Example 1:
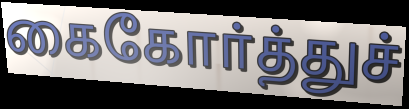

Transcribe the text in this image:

கைகோர்த்துச்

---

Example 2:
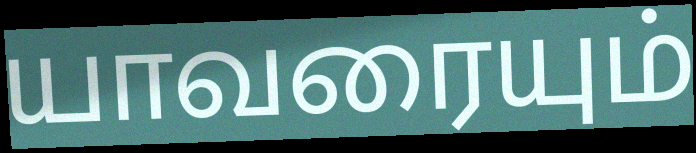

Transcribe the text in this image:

யாவரையும்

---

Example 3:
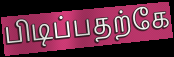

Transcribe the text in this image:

பிடிப்பதற்கே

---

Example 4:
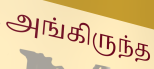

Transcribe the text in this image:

அங்கிருந்த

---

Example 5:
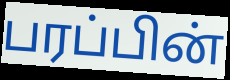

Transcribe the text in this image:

பரப்பின்